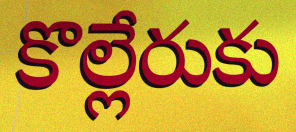
కొల్లేరుకు